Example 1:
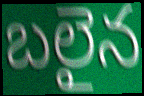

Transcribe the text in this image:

బలైన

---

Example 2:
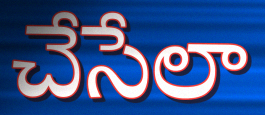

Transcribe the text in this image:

చేసేలా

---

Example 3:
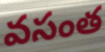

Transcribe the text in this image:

వసంత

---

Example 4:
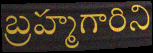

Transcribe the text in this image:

బ్రహ్మగారిని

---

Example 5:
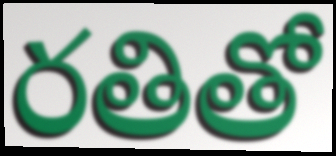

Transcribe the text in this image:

రతితో